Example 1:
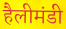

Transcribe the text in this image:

हैलीमंडी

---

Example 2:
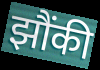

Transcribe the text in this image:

झौंकी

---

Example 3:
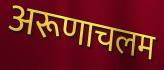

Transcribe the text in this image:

अरूणाचलम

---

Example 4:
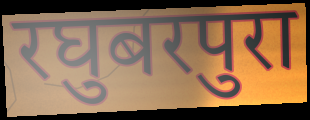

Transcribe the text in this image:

रघुबरपुरा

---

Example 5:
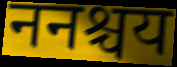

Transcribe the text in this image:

ननश्चय